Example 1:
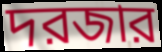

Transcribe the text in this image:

দরজার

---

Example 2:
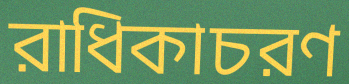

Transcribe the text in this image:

রাধিকাচরণ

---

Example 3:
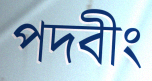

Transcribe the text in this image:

পদবীং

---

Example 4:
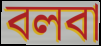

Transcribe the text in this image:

বলবা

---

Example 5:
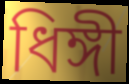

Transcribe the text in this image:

ধিঙ্গী